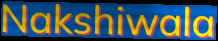
Nakshiwala